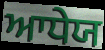
ਆਧੇਯ